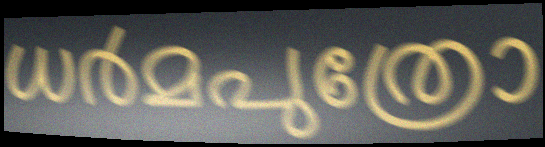
ധർമപുത്രോ